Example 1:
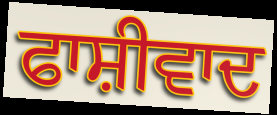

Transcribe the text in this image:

ਫਾਸ਼ੀਵਾਦ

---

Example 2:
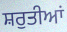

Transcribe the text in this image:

ਸ਼ਰੁਤੀਆਂ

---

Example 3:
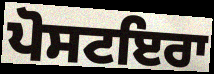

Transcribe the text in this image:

ਪੋਸਟਇਰਾ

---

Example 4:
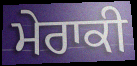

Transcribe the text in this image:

ਮੇਰਾਕੀ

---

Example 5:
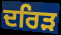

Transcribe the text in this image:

ਦਰਿੜ